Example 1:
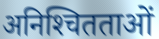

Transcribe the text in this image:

अनिश्‍चितताओं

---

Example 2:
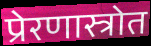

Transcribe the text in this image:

प्रेरणास्त्रोत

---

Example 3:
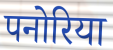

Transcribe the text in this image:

पनोरिया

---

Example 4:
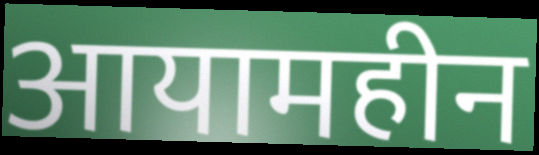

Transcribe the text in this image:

आयामहीन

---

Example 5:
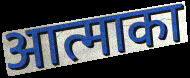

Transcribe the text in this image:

आत्माका